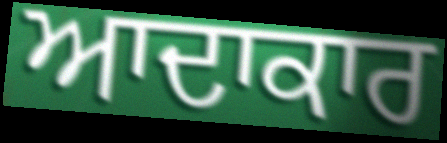
ਆਦਾਕਾਰ